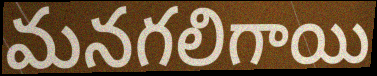
మనగలిగాయి